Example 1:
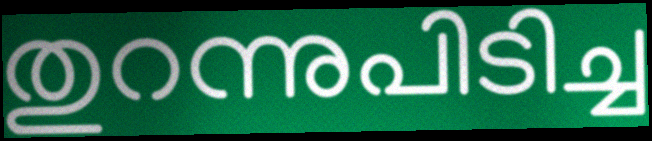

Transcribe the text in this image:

തുറന്നുപിടിച്ച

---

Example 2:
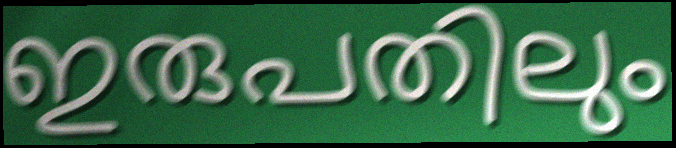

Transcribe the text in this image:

ഇരുപതിലും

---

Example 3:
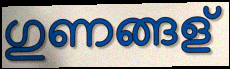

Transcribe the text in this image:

ഗുണങ്ങള്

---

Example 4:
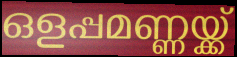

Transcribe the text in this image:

ഒളപ്പമണ്ണയ്ക്ക്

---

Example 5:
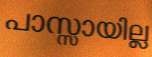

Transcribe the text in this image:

പാസ്സായില്ല